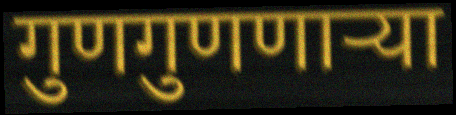
गुणगुणणाऱ्या